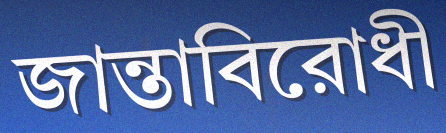
জান্তাবিরোধী